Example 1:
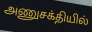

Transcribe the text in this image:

அணுசக்தியில்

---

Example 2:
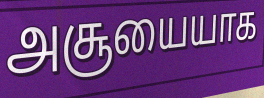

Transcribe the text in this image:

அசூயையாக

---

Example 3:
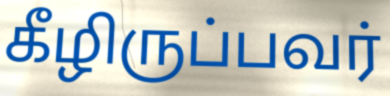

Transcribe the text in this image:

கீழிருப்பவர்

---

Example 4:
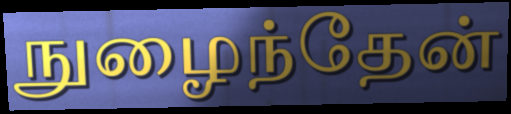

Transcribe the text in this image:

நுழைந்தேன்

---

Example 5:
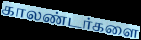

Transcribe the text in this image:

காலண்டர்களை